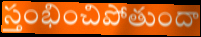
స్తంభించిపోతుందా